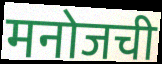
मनोजची